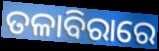
ତଳାବିରାରେ